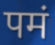
पमं